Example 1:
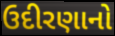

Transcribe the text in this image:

ઉદીરણાનો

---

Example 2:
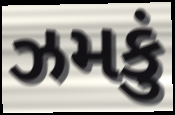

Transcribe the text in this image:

ઝમકું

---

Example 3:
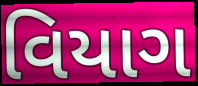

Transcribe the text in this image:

વિયાગ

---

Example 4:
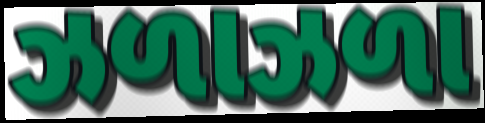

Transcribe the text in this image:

ઝળાઝળા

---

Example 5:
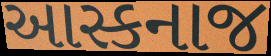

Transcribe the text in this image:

આસ્કનાજ